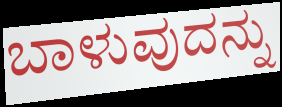
ಬಾಳುವುದನ್ನು